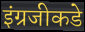
इंग्रजीकडे